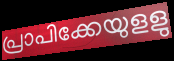
പ്രാപിക്കേയുളളു